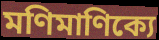
মণিমাণিক্যে